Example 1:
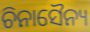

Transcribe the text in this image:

ଚିନାସୈନ୍ୟ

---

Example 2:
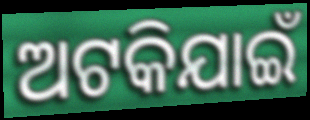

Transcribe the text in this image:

ଅଟକିଯାଇଁ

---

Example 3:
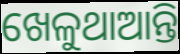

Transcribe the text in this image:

ଖେଳୁଥାଆନ୍ତି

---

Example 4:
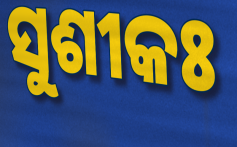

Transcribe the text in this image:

ସୁଶୀକଃ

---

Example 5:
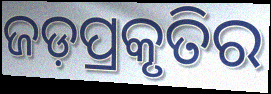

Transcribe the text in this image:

ଜଡ଼ପ୍ରକୃତିର